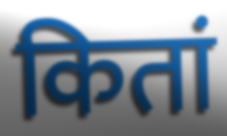
कितां